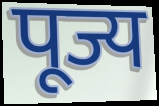
पूज्य